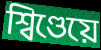
শ্বিণ্ডেয়ে